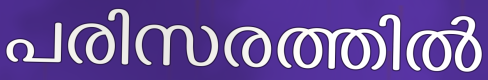
പരിസരത്തിൽ